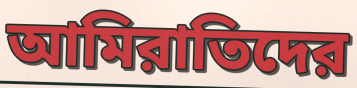
আমিরাতিদের